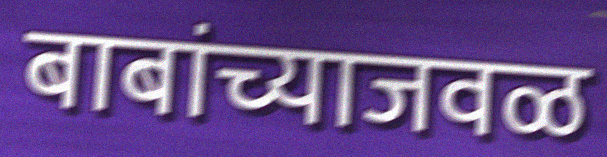
बाबांच्याजवळ